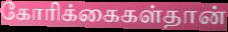
கோரிக்கைகள்தான்